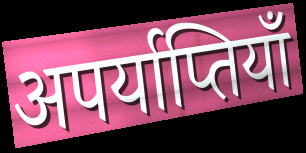
अपर्याप्तियाँ